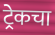
ट्रेकचा